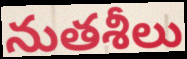
నుతశీలు